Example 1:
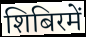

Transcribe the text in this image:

शिबिरमें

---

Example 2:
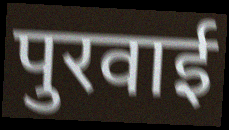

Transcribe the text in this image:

पुरवाई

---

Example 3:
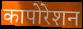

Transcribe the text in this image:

कापोरेशन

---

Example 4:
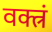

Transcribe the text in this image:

वक्त्रं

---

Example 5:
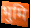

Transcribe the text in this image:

भुमि